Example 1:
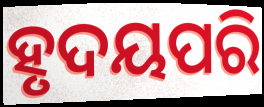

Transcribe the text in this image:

ହୃଦୟପରି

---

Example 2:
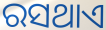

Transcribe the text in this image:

ରସଥାଏ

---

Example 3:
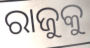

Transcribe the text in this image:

ରାଜୁକୁ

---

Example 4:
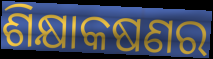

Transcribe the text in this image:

ଶିକ୍ଷାକଷଣର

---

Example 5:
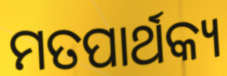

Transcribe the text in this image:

ମତପାର୍ଥକ୍ୟ